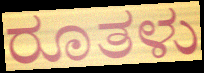
ರೂತಳು